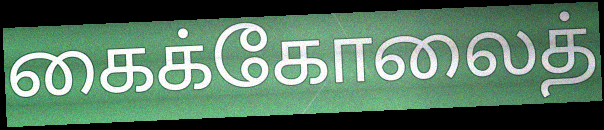
கைக்கோலைத்